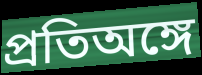
প্রতিঅঙ্গে